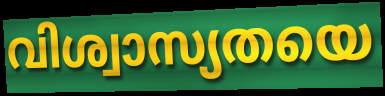
വിശ്വാസ്യതയെ